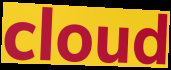
cloud